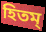
হিতম্